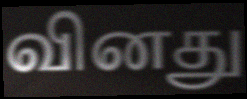
வினது